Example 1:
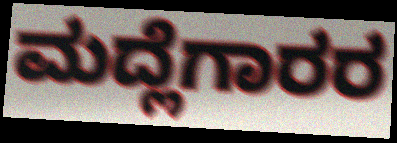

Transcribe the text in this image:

ಮದ್ಲೆಗಾರರ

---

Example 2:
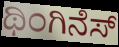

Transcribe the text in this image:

ಥಿಂಗಿನೆಸ್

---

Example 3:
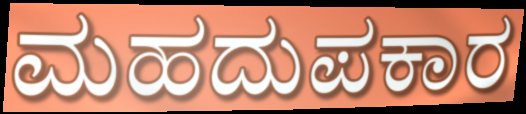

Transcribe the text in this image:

ಮಹದುಪಕಾರ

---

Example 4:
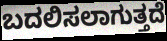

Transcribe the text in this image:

ಬದಲಿಸಲಾಗುತ್ತದೆ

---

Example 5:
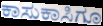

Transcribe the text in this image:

ಕಾಸುಕಾಸಿಗೂ